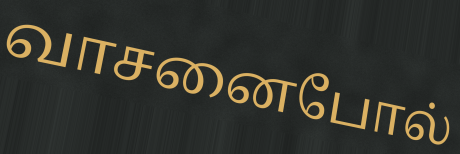
வாசனைபோல்